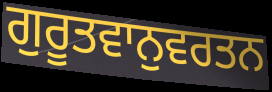
ਗੁਰੂਤਵਾਨੁਵਰਤਨ